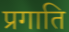
प्रगाति